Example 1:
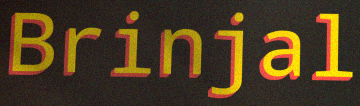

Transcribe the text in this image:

Brinjal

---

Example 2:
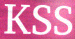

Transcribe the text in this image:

KSS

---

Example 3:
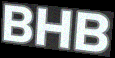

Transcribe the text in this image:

BHB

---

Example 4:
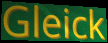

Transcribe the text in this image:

Gleick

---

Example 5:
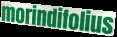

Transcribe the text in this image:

morindifolius